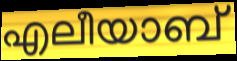
എലീയാബ്